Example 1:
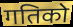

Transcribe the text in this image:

गतिको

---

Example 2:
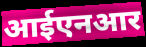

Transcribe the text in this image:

आईएनआर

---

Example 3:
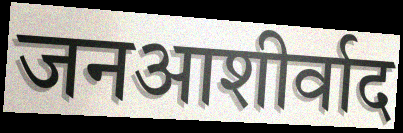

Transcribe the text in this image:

जनआशीर्वाद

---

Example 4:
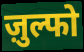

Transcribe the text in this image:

ज़ुल्फो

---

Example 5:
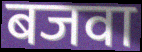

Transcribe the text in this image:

बजवा